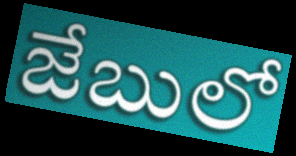
జేబులో